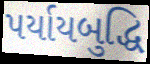
પર્યાયબુદ્ધિ